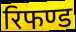
रिफण्ड